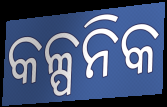
କଳ୍ପନିକ